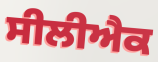
ਸੀਲੀਐਕ